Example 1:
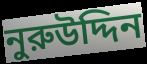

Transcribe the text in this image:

নুরুউদ্দিন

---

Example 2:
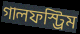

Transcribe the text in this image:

গালফস্ট্রিম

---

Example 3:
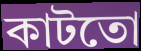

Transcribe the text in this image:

কাটতো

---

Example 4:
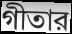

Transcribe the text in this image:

গীতার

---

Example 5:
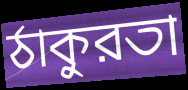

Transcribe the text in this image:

ঠাকুরতা